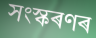
সংস্কৰণৰ